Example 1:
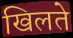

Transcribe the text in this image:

खिलते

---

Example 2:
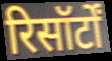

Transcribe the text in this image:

रिसॉर्टों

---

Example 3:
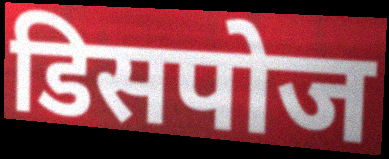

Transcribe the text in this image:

डिसपोज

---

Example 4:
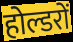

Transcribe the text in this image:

होल्डरों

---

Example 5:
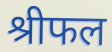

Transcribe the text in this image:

श्रीफल